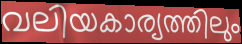
വലിയകാര്യത്തിലും